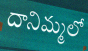
దానిమ్మలో